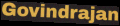
Govindrajan